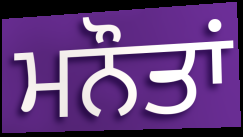
ਮਨੌਤਾਂ